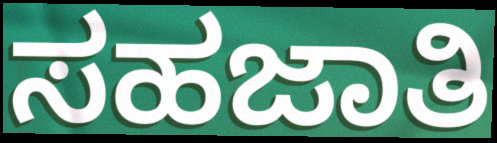
ಸಹಜಾತಿ